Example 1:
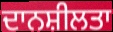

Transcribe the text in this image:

ਦਾਨਸ਼ੀਲਤਾ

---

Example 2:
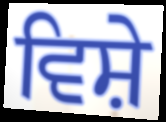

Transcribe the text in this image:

ਵਿਸ਼ੇ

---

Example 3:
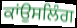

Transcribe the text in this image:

ਕਾਂਉਸਲਿੰਗ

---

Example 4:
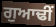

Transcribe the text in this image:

ਗੁਆਢੀਂ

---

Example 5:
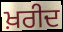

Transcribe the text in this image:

ਖ਼ਰੀਦ